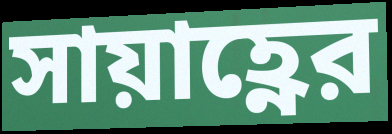
সায়াহ্ণের